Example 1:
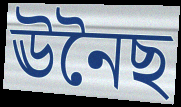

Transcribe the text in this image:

ঊনৈছ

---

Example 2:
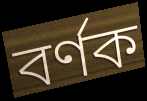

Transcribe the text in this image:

বৰ্ণক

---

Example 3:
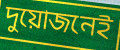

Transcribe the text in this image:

দুয়োজনেই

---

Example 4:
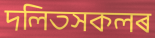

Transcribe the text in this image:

দলিতসকলৰ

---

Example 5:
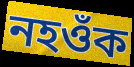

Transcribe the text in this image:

নহওঁক